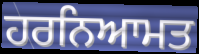
ਹਰਨਿਆਮਤ